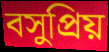
বসুপ্রিয়